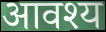
आवश्य